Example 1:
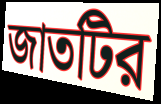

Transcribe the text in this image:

জাতটির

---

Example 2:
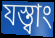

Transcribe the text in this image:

যস্ত্বাং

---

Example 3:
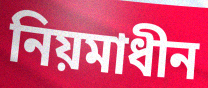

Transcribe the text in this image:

নিয়মাধীন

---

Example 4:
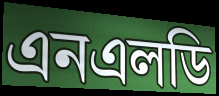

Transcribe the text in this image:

এনএলডি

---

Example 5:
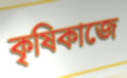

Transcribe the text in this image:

কৃষিকাজে